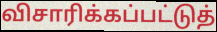
விசாரிக்கப்பட்டுத்